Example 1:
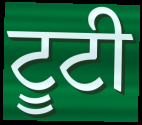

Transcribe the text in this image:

ਟੂਟੀ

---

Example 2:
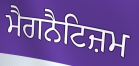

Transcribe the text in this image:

ਮੈਗਨੈਟਿਜ਼ਮ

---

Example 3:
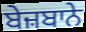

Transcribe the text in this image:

ਬੇਜ਼ਬਾਨੇ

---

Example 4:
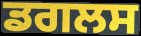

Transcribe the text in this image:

ਡਗਲਸ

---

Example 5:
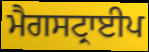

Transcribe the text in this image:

ਮੈਗਸਟ੍ਰਾਈਪ